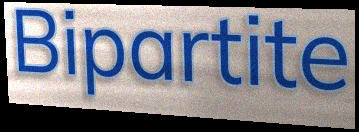
Bipartite